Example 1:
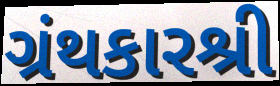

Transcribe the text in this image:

ગ્રંથકારશ્રી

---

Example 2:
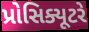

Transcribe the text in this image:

પ્રોસિક્યૂટરે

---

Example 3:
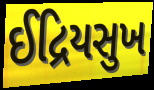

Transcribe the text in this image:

ઈદ્રિયસુખ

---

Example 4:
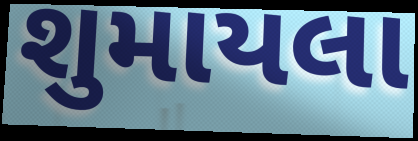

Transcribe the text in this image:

શુમાયલા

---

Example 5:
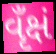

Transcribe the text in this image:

વૃઁક્ષં